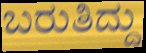
ಬರುತಿದ್ದು